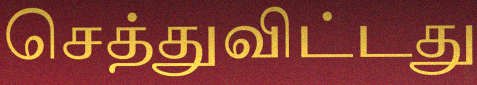
செத்துவிட்டது